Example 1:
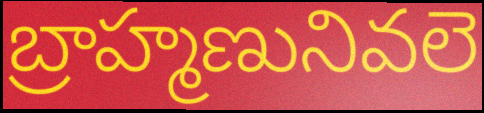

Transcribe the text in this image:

బ్రాహ్మణునివలె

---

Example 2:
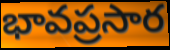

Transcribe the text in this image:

భావప్రసార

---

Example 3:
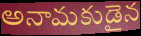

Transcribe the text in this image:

అనామకుడైన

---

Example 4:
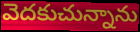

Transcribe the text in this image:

వెదకుచున్నాను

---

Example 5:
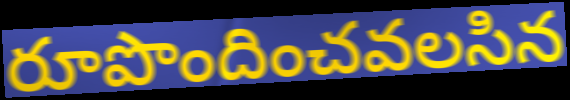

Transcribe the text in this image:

రూపొందించవలసిన